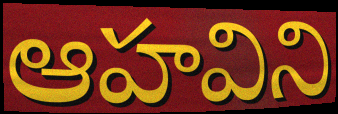
ఆహవిని